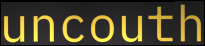
uncouth